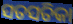
ସତସତିକା